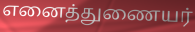
எனைத்துணையர்